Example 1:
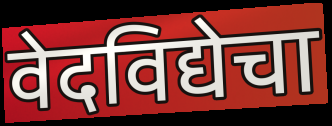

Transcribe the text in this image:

वेदविद्येचा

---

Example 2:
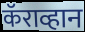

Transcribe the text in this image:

कॅराव्हान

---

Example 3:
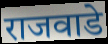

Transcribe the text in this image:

राजवाडे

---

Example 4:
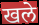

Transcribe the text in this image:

खले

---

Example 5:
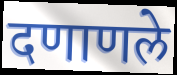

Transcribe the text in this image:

दणाणले